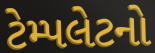
ટેમ્પલેટનો